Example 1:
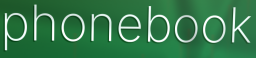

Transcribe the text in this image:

phonebook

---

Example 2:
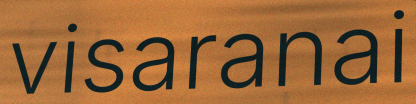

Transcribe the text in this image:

visaranai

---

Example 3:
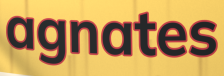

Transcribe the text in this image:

agnates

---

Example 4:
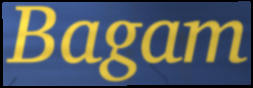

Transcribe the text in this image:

Bagam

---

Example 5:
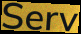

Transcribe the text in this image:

Serv